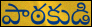
పాఠకుడి